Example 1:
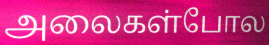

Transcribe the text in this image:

அலைகள்போல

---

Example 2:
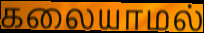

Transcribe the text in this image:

கலையாமல்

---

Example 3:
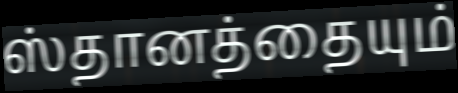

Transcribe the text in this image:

ஸ்தானத்தையும்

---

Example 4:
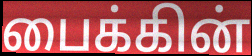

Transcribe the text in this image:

பைக்கின்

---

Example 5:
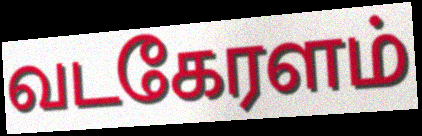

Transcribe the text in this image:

வடகேரளம்